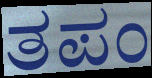
ತಪಂ